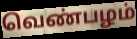
வெண்பழம்